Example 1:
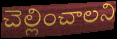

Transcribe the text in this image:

చెల్లించాలని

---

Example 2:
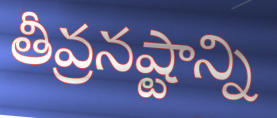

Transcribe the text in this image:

తీవ్రనష్టాన్ని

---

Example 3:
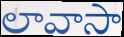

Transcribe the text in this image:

లావాసా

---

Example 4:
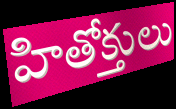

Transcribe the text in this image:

హితోక్తులు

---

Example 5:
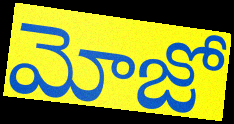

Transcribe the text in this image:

మోజో